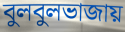
বুলবুলভাজায়